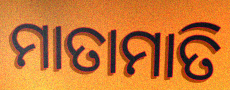
ମାତାମାତି